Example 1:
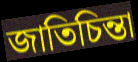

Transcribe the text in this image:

জাতিচিন্তা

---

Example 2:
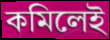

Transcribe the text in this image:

কমিলেই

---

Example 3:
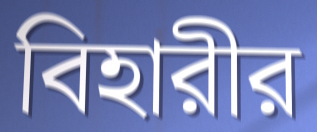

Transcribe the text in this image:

বিহারীর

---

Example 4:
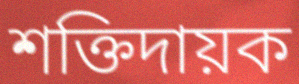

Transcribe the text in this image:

শক্তিদায়ক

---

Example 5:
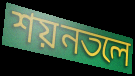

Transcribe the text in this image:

শয়নতলে